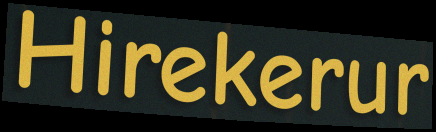
Hirekerur